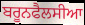
ਬਰੂਨਫੈਲਸੀਆ